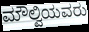
ಮೌಲ್ವಿಯವರು